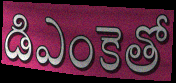
డిఎంకెతో